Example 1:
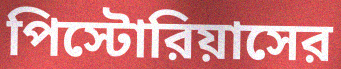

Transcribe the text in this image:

পিস্টোরিয়াসের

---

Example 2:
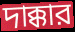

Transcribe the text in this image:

দাক্কার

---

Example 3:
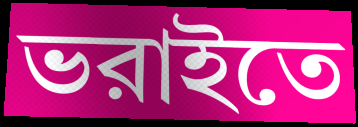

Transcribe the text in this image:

ভরাইতে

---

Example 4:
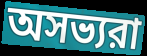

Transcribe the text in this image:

অসভ্যরা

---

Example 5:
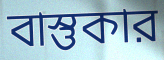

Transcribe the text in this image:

বাস্তুকার